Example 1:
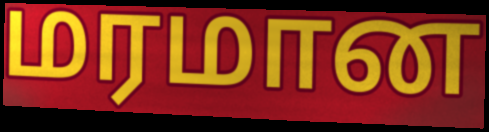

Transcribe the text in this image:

மரமான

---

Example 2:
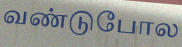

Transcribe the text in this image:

வண்டுபோல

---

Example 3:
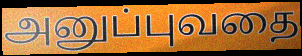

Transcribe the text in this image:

அனுப்புவதை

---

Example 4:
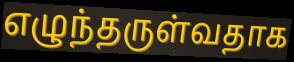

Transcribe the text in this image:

எழுந்தருள்வதாக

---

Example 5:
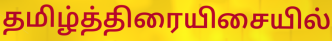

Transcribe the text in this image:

தமிழ்த்திரையிசையில்